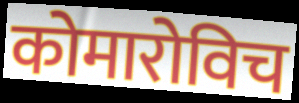
कोमारोविच